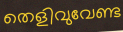
തെളിവുവേണ്ട